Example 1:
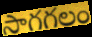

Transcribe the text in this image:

సాగగలం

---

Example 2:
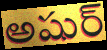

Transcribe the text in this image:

అషుర్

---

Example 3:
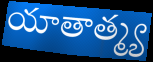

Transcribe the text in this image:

యాతాత్మ్య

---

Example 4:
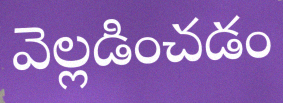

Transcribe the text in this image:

వెల్లడించడం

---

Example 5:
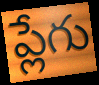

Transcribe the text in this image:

ప్లేగు